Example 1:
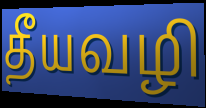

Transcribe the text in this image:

தீயவழி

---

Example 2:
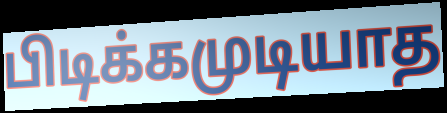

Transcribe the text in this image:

பிடிக்கமுடியாத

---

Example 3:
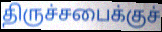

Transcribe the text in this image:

திருச்சபைக்குச்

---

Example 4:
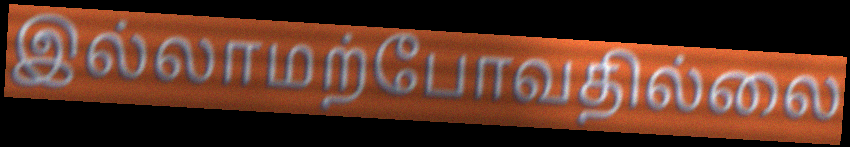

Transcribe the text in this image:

இல்லாமற்போவதில்லை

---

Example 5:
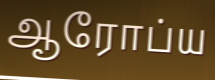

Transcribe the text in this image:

ஆரோப்ய